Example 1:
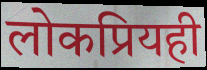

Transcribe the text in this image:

लोकप्रियही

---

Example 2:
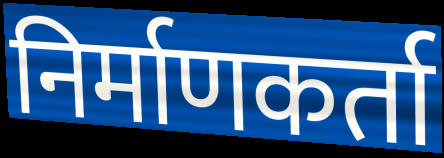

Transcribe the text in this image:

निर्माणकर्ता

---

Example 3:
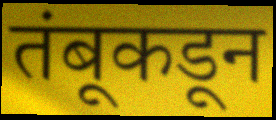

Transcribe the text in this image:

तंबूकडून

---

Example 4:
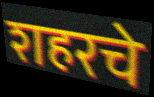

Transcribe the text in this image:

शहरचे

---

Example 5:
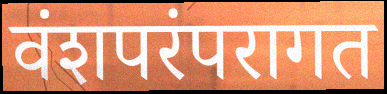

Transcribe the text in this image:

वंशपरंपरागत